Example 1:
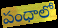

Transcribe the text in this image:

పంధాలో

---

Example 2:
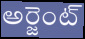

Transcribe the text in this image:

అర్జెంట్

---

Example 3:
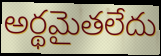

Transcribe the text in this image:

అర్థమైతలేదు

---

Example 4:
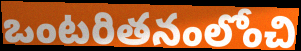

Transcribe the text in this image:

ఒంటరితనంలోంచి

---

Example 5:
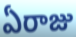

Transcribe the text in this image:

ఏరాజు